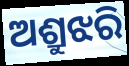
ଅଶ୍ରୁଝରି